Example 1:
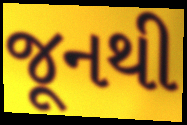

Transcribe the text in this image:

જૂનથી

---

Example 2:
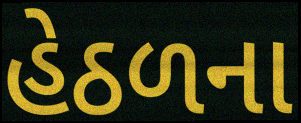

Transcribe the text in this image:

હેઠળના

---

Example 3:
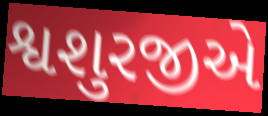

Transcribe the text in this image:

શ્વશુરજીએ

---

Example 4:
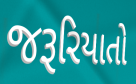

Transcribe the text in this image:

જરૂરિયાતો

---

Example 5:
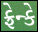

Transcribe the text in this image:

ફ્રેન્કે